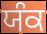
ਯੰਕ